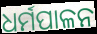
ଧର୍ମପାଳନ